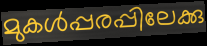
മുകൾപ്പരപ്പിലേക്കു